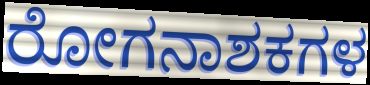
ರೋಗನಾಶಕಗಳ